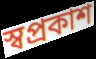
স্বপ্ৰকাশ